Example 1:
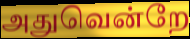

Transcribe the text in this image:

அதுவென்றே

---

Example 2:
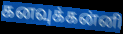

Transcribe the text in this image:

கனவுக்கன்னி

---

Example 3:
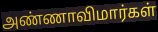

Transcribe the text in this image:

அண்ணாவிமார்கள்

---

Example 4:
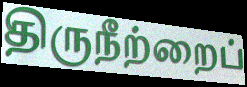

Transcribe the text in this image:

திருநீற்றைப்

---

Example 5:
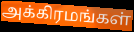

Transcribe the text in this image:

அக்கிரமங்கள்